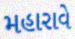
મહારાવે